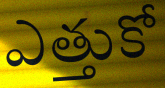
ఎత్తుకో